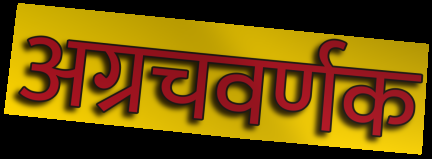
अग्रचवर्णक